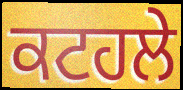
ਕਟਹਲੇ